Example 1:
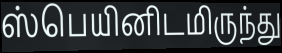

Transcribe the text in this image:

ஸ்பெயினிடமிருந்து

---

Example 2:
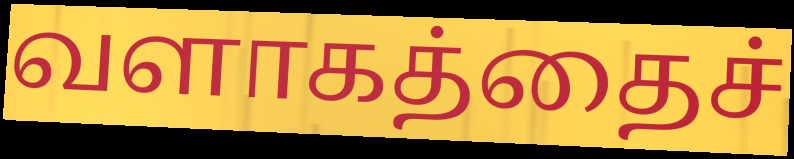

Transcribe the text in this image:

வளாகத்தைச்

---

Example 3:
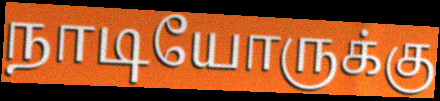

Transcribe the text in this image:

நாடியோருக்கு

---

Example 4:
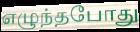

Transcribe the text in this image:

எழுந்தபோது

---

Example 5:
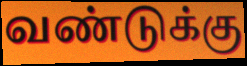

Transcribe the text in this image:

வண்டுக்கு